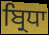
ਬ੍ਰਿਧਾ